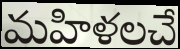
మహిళలచే